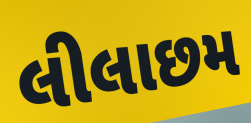
લીલાછમ